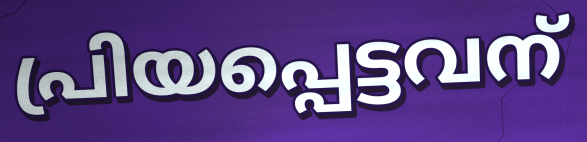
പ്രിയപ്പെട്ടവന്